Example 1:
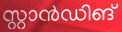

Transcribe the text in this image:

സ്റ്റാൻഡിങ്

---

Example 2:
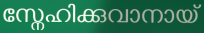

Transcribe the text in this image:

സ്നേഹിക്കുവാനായ്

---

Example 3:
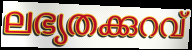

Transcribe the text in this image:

ലഭ്യതക്കുറവ്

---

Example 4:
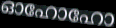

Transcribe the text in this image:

ഓഹോഹോ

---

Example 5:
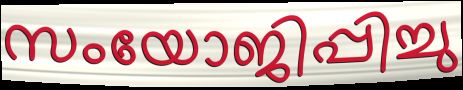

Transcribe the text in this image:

സംയോജിപ്പിച്ചു